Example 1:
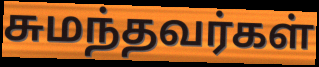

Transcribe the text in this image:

சுமந்தவர்கள்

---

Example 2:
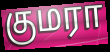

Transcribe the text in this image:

குமரா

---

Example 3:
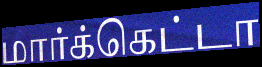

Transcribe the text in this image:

மார்க்கெட்டா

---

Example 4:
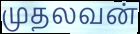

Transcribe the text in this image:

முதலவன்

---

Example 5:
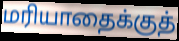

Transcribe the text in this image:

மரியாதைக்குத்